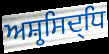
ਅਸ਼੍ਠਸਿਦ੍ਧਿ